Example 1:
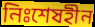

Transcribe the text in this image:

নিঃশেষহীন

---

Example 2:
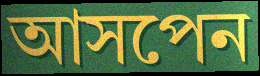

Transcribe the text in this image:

আসপেন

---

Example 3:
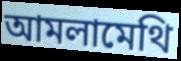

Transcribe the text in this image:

আমলামেথি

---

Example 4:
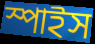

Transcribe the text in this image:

স্পাইস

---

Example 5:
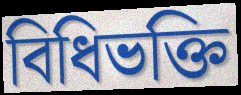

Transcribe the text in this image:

বিধিভক্তি